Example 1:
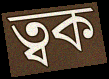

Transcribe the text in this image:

ত্বক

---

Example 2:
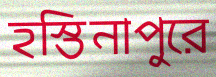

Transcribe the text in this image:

হস্তিনাপুরে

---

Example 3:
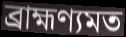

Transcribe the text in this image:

ব্রাহ্মণ্যমত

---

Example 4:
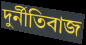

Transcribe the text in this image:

দুর্নীতিবাজ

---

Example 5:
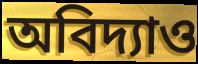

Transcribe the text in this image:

অবিদ্যাও